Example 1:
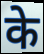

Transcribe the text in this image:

के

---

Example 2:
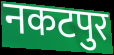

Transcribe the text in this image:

नकटपुर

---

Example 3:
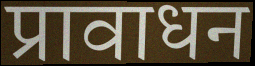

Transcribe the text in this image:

प्रावाधन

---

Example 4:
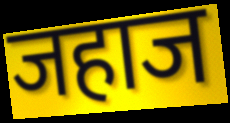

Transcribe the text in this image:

जहाज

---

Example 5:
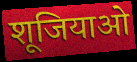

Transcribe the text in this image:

शूजियाओ